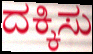
ದಕ್ಕಿಸು